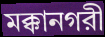
মক্কানগরী